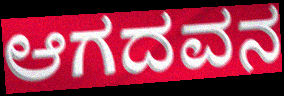
ಆಗದವನ